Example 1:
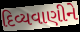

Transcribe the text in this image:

દિવ્યવાણીને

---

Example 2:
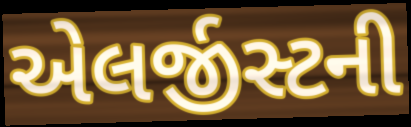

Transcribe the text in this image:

એલર્જીસ્ટની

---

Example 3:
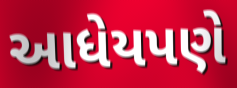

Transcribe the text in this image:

આધેયપણે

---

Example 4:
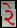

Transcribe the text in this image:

રે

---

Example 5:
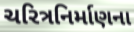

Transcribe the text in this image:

ચરિત્રનિર્માણના